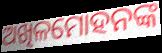
ଅଖିଳମୋହନଙ୍କ